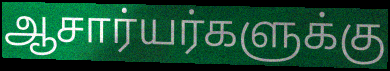
ஆசார்யர்களுக்கு